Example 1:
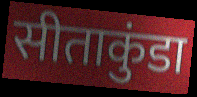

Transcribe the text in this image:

सीताकुंडा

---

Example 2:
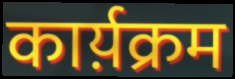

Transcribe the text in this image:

कार्य़क्रम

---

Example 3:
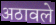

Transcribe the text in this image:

अठावले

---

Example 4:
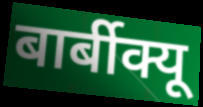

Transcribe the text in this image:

बार्बीक्यू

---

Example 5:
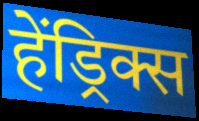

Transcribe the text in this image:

हेंड्रिक्स